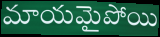
మాయమైపోయి